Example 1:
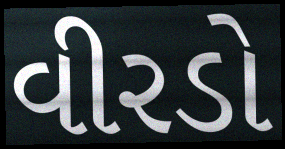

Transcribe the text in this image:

વીરડો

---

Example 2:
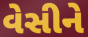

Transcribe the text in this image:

વેસીને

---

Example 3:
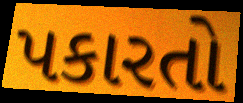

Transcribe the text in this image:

પકારતો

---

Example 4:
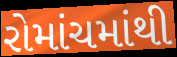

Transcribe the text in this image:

રોમાંચમાંથી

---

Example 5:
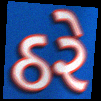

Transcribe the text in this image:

ઠરે